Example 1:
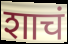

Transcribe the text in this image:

शाचं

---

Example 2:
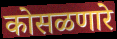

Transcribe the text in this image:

कोसळणारे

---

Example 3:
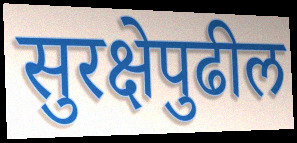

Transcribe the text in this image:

सुरक्षेपुढील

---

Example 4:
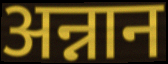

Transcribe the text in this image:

अन्नान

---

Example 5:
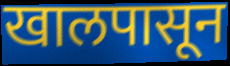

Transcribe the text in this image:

खालपासून